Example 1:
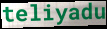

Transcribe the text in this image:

teliyadu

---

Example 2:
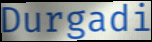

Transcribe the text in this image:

Durgadi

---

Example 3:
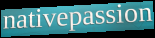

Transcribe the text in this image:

nativepassion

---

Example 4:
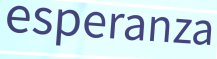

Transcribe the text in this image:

esperanza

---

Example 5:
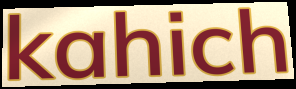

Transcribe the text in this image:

kahich